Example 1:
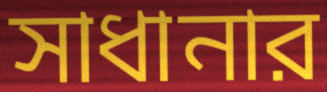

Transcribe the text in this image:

সাধানার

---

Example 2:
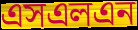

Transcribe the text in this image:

এসএলএন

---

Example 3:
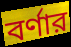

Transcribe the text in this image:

বর্ণার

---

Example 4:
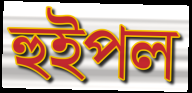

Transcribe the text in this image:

হুইপল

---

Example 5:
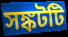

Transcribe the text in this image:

সঙ্কটটি